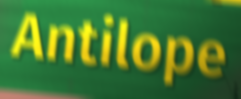
Antilope